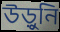
উড়ুনি